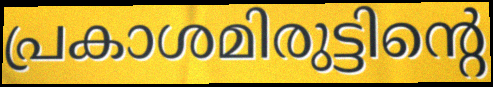
പ്രകാശമിരുട്ടിന്റെ